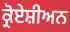
ਕ੍ਰੋਏਸ਼ੀਅਨ